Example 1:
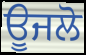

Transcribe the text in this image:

ਊਜਲੋ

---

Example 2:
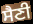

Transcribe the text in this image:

ਸੈਣੀ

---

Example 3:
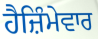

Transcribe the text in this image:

ਹੈਜ਼ਿੰਮੇਵਾਰ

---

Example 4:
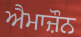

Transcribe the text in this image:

ਐਮਾਜ਼ੌਨ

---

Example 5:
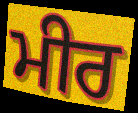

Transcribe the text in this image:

ਮੀਰ